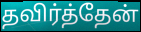
தவிர்த்தேன்